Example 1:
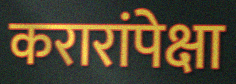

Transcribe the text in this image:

करारांपेक्षा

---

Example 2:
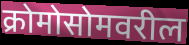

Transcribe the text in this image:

क्रोमोसोमवरील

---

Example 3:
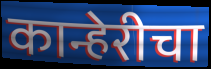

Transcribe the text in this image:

कान्हेरीचा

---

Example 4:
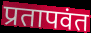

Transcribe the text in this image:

प्रतापवंत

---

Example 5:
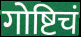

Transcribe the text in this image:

गोष्टिचं